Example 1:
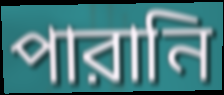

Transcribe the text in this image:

পারানি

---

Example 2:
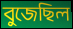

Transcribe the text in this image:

বুজেছিল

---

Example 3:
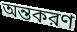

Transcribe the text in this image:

অন্তকরণ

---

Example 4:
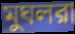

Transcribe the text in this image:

মুঘলরা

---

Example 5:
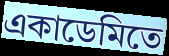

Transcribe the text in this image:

একাডেমিতে